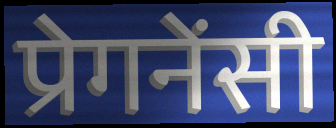
प्रेगनेंसी